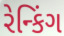
રેન્કિંગ